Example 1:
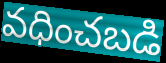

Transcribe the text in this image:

వధించబడి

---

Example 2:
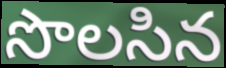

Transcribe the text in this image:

సొలసిన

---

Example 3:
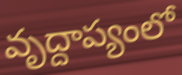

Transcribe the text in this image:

వృద్దాప్యంలో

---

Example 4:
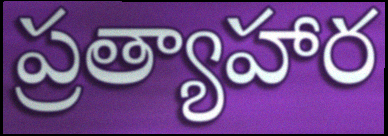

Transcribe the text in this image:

ప్రత్యాహార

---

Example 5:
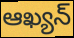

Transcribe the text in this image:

ఆఖ్యన్